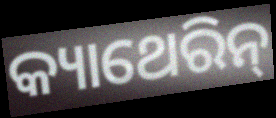
କ୍ୟାଥେରିନ୍